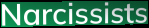
Narcissists